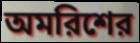
অমরিশের